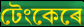
টেংকেৰে